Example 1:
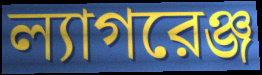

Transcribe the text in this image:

ল্যাগরেঞ্জ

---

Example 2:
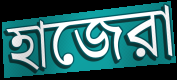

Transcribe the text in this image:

হাজেরা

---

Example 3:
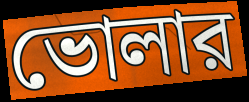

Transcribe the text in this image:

ভোলার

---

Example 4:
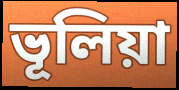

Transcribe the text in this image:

ভূলিয়া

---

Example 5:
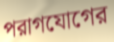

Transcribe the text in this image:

পরাগযোগের